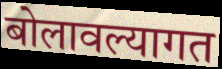
बोलावल्यागत